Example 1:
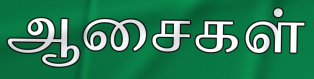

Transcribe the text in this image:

ஆசைகள்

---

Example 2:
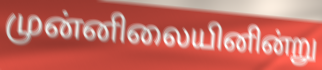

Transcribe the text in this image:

முன்னிலையினின்று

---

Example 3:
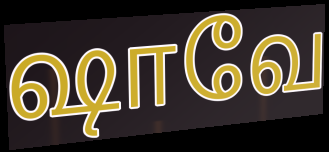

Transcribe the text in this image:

ஷாவே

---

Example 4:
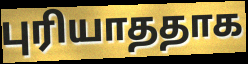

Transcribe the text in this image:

புரியாததாக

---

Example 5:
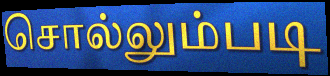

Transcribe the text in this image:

சொல்லும்படி